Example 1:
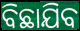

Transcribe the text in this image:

ବିଛାଯିବ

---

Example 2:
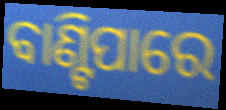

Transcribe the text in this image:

ବାଣ୍ଟିପାରେ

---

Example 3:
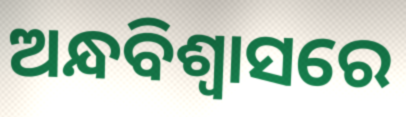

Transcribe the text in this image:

ଅନ୍ଧବିଶ୍ବାସରେ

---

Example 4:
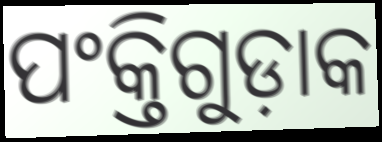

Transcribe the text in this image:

ପଂକ୍ତିଗୁଡ଼ାକ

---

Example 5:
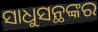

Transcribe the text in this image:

ସାଧୁସନ୍ଥଙ୍କର